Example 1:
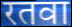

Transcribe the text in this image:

रतवा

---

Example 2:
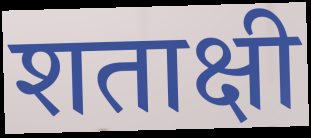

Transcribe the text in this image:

शताक्षी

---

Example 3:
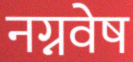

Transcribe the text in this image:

नग्नवेष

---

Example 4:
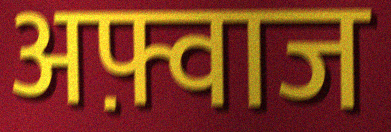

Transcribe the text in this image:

अफ़्वाज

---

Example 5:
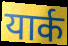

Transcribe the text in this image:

यार्क